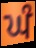
ਘੰ